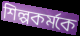
শিল্পকর্মকে